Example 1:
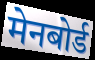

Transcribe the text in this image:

मेनबोर्ड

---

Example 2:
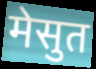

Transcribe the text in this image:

मेसुत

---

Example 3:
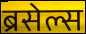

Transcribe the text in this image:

ब्रसेल्स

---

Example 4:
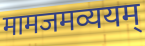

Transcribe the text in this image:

मामजमव्ययम्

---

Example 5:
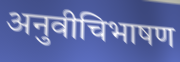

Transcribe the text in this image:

अनुवीचिभाषण